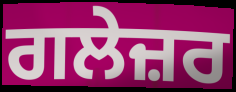
ਗਲੇਜ਼ਰ